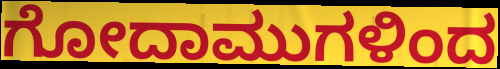
ಗೋದಾಮುಗಳಿಂದ